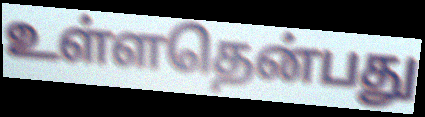
உள்ளதென்பது